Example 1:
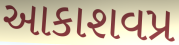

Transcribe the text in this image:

આકાશવપ્ર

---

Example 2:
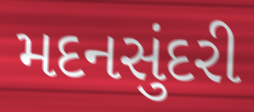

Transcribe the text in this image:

મદનસુંદરી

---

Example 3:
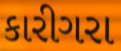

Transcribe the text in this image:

કારીગરા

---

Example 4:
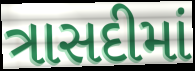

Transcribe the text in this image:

ત્રાસદીમાં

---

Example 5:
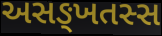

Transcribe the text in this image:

અસઙ્ખતસ્સ